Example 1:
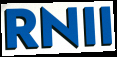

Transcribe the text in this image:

RNII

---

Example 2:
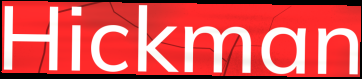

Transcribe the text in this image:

Hickman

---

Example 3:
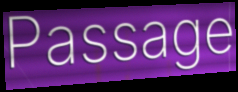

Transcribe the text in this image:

Passage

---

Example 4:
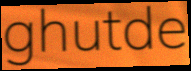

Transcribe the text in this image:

ghutde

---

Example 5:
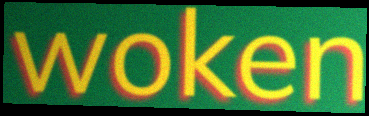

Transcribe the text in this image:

woken